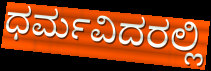
ಧರ್ಮವಿದರಲ್ಲಿ